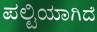
ಪಲ್ಟಿಯಾಗಿದೆ